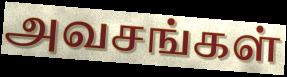
அவசங்கள்